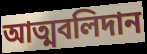
আত্মবলিদান